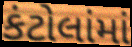
કંટોલાંમાં